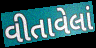
વીતાવેલાં